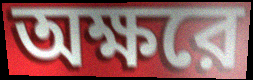
অক্ষরে